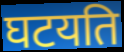
घटयति